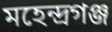
মহেন্দ্রগঞ্জ